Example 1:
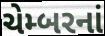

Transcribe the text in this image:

ચેમ્બરનાં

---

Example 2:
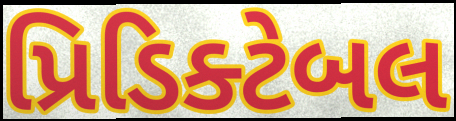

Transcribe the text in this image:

પ્રિડિક્ટેબલ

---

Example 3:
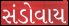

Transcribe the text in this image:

સંડોવાય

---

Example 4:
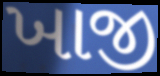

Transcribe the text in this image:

ખાજી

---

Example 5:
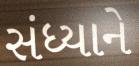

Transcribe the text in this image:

સંધ્યાને